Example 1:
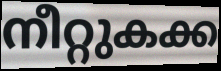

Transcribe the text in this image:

നീറ്റുകക്ക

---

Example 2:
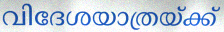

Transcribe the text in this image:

വിദേശയാത്രയ്ക്ക്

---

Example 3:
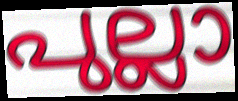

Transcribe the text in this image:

പുല്ലാ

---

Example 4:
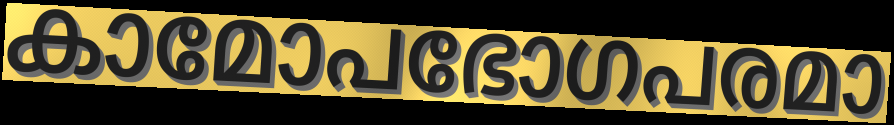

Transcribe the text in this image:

കാമോപഭോഗപരമാ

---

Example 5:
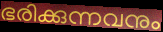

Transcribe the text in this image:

ഭരിക്കുന്നവനും